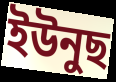
ইউনুছ